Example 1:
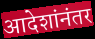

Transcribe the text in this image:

आदेशांनंतर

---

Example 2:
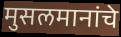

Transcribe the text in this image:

मुसलमानांचे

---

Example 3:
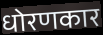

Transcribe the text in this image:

धोरणकार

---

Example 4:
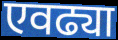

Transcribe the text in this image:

एवढ्या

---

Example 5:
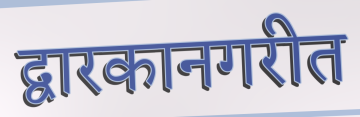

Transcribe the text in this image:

द्वारकानगरीत